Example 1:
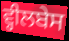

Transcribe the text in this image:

ਵ੍ਹੀਲਬੇਸ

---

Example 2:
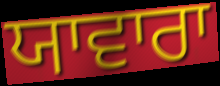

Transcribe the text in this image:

ਯਾਵਾਰਾ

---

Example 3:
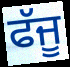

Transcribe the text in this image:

ਫੱਜੂ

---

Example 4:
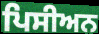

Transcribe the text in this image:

ਪਿਸੀਅਨ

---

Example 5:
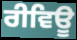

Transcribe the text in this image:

ਰੀਵਿਊ